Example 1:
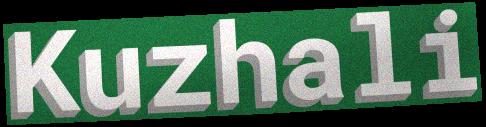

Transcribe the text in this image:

Kuzhali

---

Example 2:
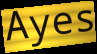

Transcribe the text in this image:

Ayes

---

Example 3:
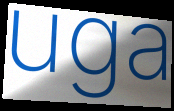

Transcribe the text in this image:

uga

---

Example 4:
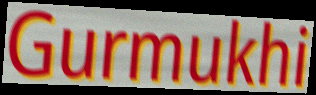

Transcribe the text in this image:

Gurmukhi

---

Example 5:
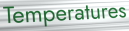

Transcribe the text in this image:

Temperatures